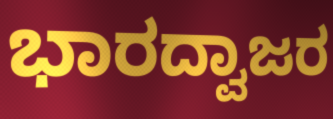
ಭಾರದ್ವಾಜರ